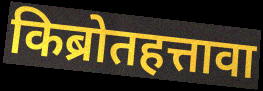
किब्रोतहत्तावा